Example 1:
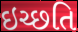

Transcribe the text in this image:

ઇચ્છતિ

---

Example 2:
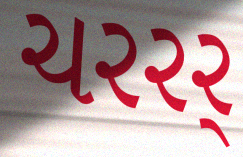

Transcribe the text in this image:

ચરરર્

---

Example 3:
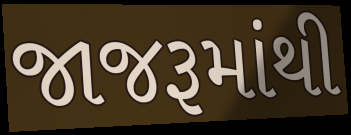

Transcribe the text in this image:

જાજરૂમાંથી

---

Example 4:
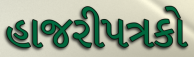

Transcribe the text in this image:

હાજરીપત્રકો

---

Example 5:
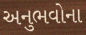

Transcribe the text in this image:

અનુભવોના